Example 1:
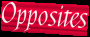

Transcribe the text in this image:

Opposites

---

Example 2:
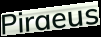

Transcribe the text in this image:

Piraeus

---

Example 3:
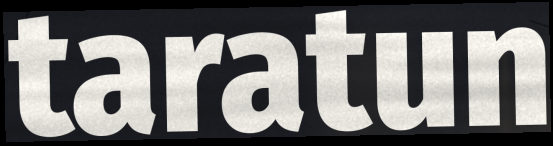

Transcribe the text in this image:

taratun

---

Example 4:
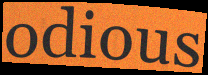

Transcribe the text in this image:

odious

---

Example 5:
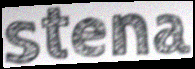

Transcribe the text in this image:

stena